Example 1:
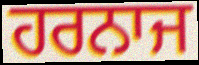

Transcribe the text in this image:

ਹਰਨਾਜ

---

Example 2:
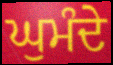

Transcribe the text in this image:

ਘੁਮੰਦੇ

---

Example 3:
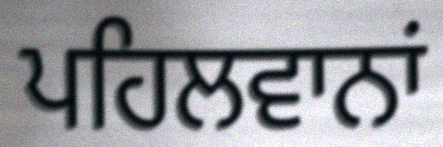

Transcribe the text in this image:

ਪਹਿਲਵਾਨਾਂ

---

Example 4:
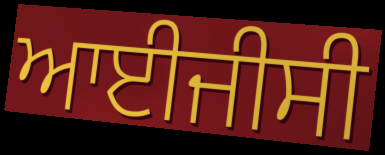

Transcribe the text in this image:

ਆਈਜੀਸੀ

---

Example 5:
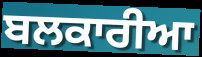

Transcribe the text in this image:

ਬਲਕਾਰੀਆ